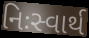
નિઃસ્વાર્થ